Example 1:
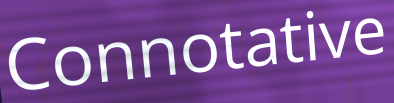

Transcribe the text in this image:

Connotative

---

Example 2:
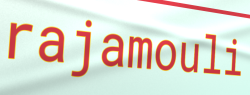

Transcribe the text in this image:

rajamouli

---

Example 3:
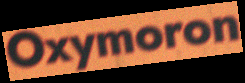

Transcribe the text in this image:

Oxymoron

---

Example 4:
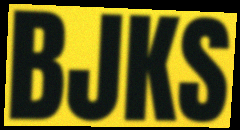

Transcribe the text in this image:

BJKS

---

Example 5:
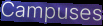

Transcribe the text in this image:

Campuses